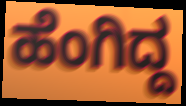
ಹೆಂಗಿದ್ದ